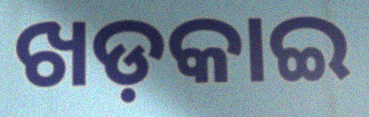
ଖଡ଼କାଇ